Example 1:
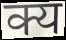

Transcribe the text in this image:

क्य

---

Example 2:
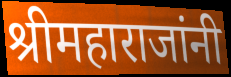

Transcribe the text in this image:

श्रीमहाराजांनी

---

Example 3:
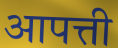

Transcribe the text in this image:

आपत्ती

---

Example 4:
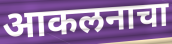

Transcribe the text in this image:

आकलनाचा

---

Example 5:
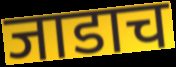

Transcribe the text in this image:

जाडाच